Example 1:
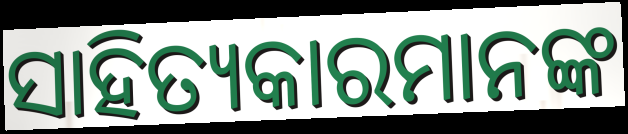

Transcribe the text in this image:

ସାହିତ୍ୟକାରମାନଙ୍କ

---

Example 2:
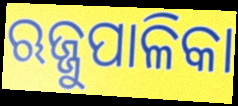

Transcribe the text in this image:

ଋଜ୍ଜୁପାଳିକା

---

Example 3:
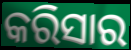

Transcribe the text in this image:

କରିସାର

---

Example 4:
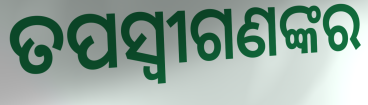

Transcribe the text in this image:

ତପସ୍ୱୀଗଣଙ୍କର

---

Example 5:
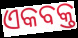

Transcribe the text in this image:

ଏକବକ୍ତ